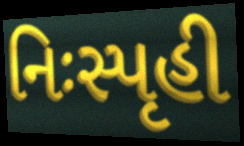
નિઃસ્પૃહી